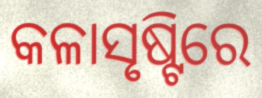
କଳାସୃଷ୍ଟିରେ